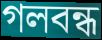
গলবন্ধ